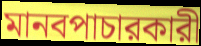
মানবপাচারকারী